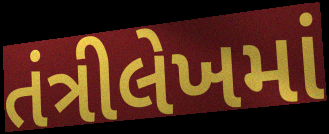
તંત્રીલેખમાં